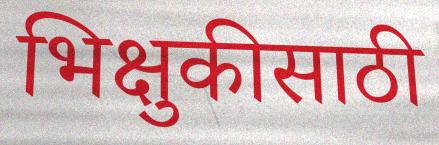
भिक्षुकीसाठी